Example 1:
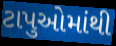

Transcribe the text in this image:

ટાપુઓમાંથી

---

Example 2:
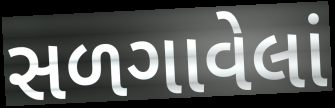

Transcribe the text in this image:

સળગાવેલાં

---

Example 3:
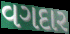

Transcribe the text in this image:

વગદાર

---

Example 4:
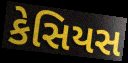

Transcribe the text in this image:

કેસિયસ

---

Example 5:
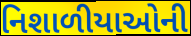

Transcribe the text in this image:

નિશાળીયાઓની